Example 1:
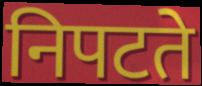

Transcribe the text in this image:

निपटते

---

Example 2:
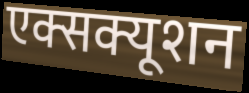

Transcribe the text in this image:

एक्सक्यूशन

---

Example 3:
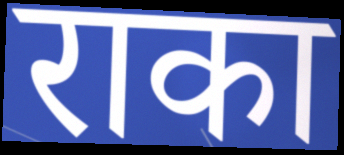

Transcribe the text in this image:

राका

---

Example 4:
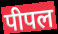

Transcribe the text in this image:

पीपल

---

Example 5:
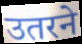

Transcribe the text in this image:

उतरने